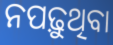
ନପଢ଼ୁଥିବା